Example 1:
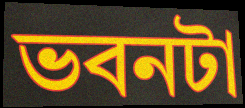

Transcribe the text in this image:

ভবনটা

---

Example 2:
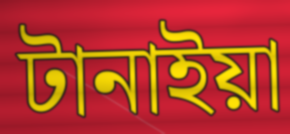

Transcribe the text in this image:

টানাইয়া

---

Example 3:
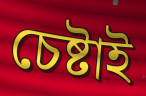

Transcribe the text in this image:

চেষ্টাই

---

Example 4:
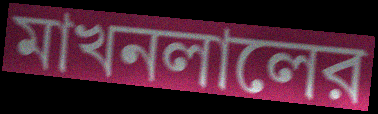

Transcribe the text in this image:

মাখনলালের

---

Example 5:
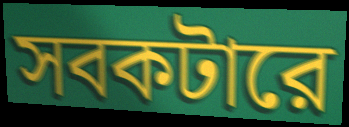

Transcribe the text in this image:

সবকটারে